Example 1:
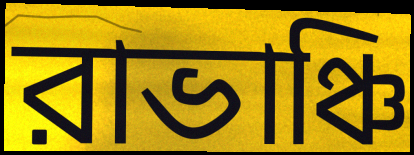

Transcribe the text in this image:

রাভাঞ্চি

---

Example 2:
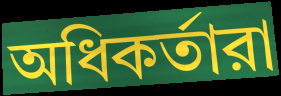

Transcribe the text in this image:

অধিকর্তারা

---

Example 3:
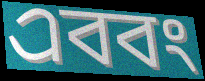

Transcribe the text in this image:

এববং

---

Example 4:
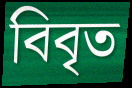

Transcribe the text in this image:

বিবৃত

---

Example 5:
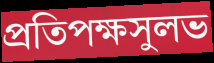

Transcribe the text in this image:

প্রতিপক্ষসুলভ